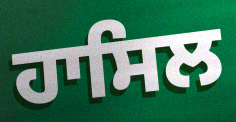
ਹਾਸਿਲ